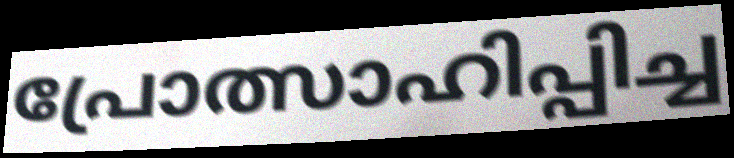
പ്രോത്സാഹിപ്പിച്ച